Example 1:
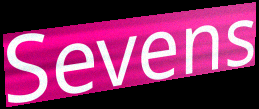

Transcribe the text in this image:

Sevens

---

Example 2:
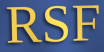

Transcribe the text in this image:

RSF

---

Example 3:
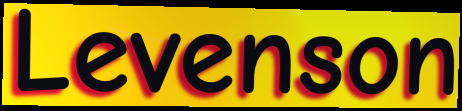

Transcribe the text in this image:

Levenson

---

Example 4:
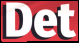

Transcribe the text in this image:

Det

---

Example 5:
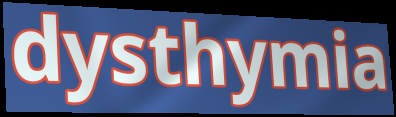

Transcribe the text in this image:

dysthymia